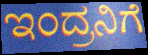
ಇಂದ್ರನಿಗೆ